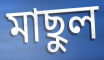
মাছুল